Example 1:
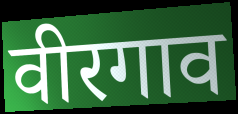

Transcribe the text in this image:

वीरगाव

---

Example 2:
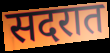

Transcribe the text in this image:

सदरात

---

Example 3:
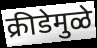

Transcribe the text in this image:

क्रीडेमुळे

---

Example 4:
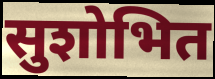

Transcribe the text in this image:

सुशोभित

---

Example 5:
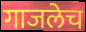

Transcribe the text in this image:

गाजलेच